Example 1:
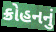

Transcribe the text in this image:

ક્રોહનનું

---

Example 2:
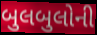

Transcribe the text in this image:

બુલબુલોની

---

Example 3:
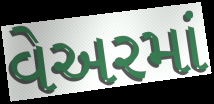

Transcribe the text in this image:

વેઅરમાં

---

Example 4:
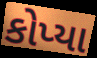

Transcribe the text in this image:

કોપ્યા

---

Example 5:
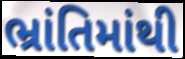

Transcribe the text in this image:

ભ્રાંતિમાંથી